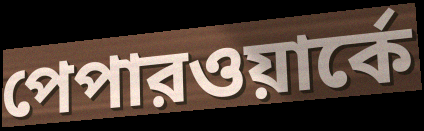
পেপারওয়ার্কে